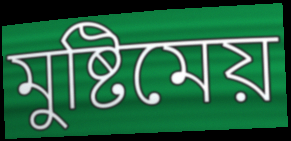
মুষ্টিমেয়